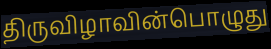
திருவிழாவின்பொழுது